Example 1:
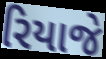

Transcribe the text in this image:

રિયાજે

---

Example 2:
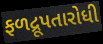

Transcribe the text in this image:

ફળદ્રૂપતારોધી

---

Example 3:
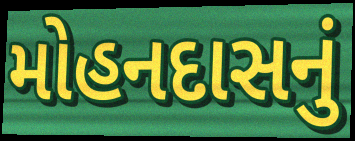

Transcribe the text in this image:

મોહનદાસનું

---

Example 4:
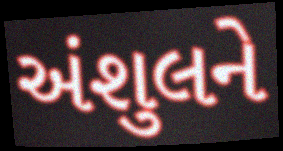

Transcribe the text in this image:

અંશુલને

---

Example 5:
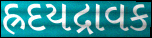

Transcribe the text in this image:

હ્રદયદ્રાવક